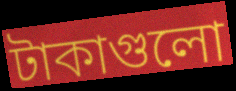
টাকাগুলো